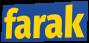
farak